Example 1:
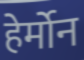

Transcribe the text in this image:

हेर्मोन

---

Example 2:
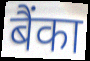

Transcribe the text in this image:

बैंका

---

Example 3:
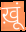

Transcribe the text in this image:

ख़ूं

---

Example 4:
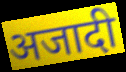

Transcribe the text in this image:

अजादी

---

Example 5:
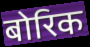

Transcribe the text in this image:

बोरिक